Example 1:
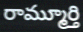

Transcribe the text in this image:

రామ్మూర్తి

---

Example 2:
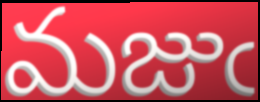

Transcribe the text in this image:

మజుఁ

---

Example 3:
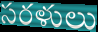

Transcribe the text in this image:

సరళులు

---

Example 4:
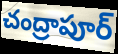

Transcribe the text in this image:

చంద్రాపూర్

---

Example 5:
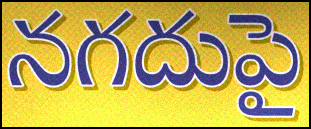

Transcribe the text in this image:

నగదుపై